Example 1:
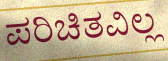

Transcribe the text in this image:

ಪರಿಚಿತವಿಲ್ಲ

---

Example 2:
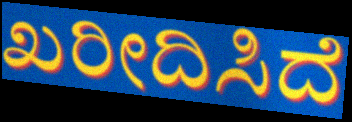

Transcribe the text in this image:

ಖರೀದಿಸಿದೆ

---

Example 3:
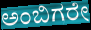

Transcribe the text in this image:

ಅಂಬಿಗರೇ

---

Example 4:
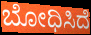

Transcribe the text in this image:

ಬೋಧಿಸಿದೆ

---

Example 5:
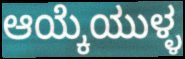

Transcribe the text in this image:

ಆಯ್ಕೆಯುಳ್ಳ